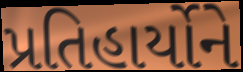
પ્રતિહાર્યોને